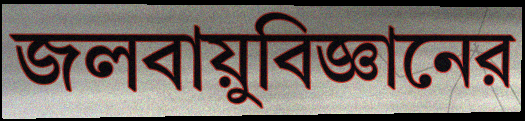
জলবায়ুবিজ্ঞানের